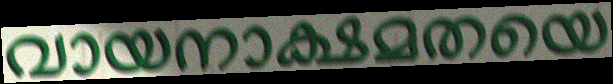
വായനാക്ഷമതയെ